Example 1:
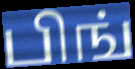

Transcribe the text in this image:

பிங்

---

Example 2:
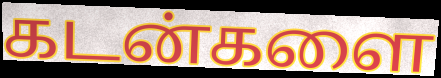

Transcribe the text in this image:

கடன்களை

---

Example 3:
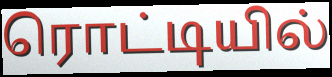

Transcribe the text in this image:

ரொட்டியில்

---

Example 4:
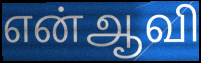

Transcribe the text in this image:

என்ஆவி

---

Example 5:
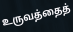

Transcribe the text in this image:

உருவத்தைத்